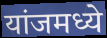
यांजमध्ये